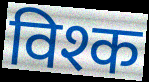
विश्क